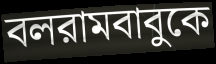
বলরামবাবুকে